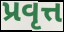
પ્રવૃત્ત